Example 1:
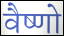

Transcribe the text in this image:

वैष्णो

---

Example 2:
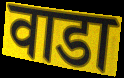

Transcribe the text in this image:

वाडा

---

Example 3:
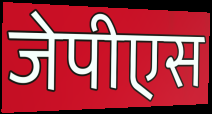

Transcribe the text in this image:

जेपीएस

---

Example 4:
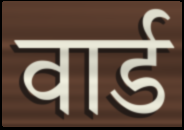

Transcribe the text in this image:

वार्ड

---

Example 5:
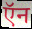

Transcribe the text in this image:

ऍन